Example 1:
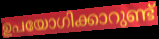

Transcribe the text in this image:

ഉപയോഗിക്കാറുണ്ട്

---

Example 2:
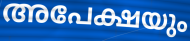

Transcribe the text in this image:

അപേക്ഷയും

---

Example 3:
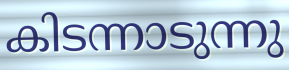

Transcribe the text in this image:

കിടന്നാടുന്നു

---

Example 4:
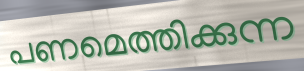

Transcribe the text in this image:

പണമെത്തിക്കുന്ന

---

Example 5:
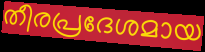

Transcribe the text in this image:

തീരപ്രദേശമായ